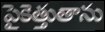
పైకెత్తుతాను